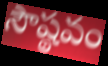
సౌష్ఠవం